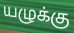
யழுக்கு